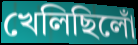
খেলিছিলোঁ